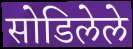
सोडिलेले